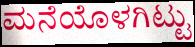
ಮನೆಯೊಳಗಿಟ್ಟು